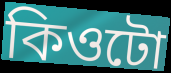
কিওটো